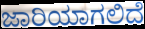
ಜಾರಿಯಾಗಲಿದೆ